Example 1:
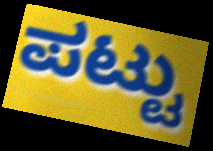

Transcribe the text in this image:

ಪಟ್ಟು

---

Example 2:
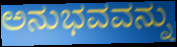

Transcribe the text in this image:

ಅನುಭವವನ್ನು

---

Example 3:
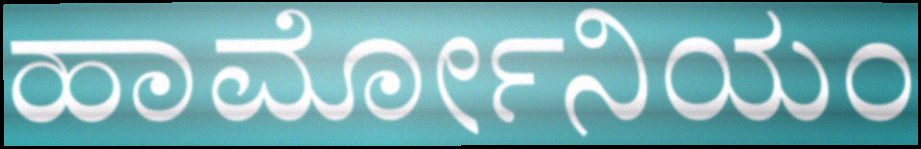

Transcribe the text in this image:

ಹಾರ್ಮೋನಿಯಂ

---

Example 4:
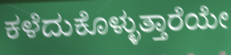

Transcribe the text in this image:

ಕಳೆದುಕೊಳ್ಳುತ್ತಾರೆಯೇ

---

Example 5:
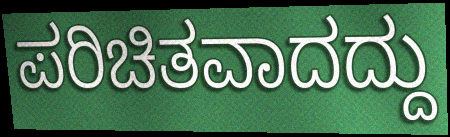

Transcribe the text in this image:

ಪರಿಚಿತವಾದದ್ದು